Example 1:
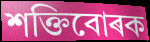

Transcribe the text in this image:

শক্তিবোৰক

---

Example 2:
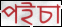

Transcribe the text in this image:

পইচা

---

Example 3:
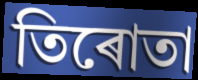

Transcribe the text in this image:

তিৰোতা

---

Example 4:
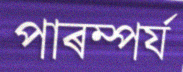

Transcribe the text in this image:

পাৰম্পৰ্য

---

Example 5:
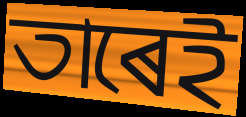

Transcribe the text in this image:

তাৰেই